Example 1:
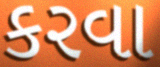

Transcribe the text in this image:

કરવા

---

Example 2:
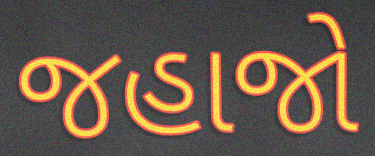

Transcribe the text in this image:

જહાજો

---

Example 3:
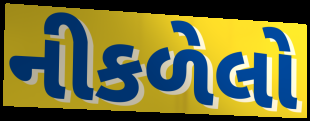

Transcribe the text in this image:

નીકળેલો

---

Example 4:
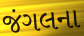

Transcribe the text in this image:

જંગલના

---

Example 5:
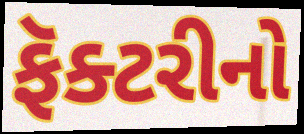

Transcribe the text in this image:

ફૅક્ટરીનો